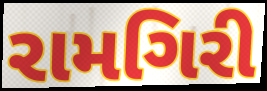
રામગિરી